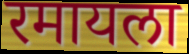
रमायला